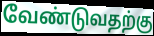
வேண்டுவதற்கு